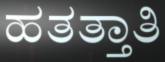
ಹತತ್ತಾತಿ